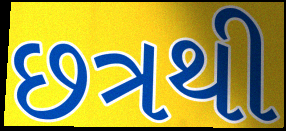
છત્રથી